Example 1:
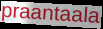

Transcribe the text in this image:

praantaala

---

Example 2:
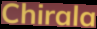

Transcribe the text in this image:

Chirala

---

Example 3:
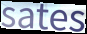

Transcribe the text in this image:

sates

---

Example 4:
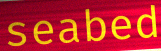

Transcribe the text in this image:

seabed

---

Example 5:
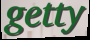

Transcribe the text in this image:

getty